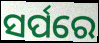
ସର୍ପରେ